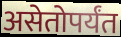
असेतोपर्यंत